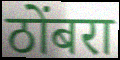
ठोंबरा